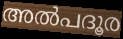
അൽപദൂര